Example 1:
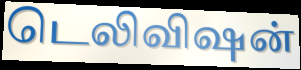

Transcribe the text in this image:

டெலிவிஷன்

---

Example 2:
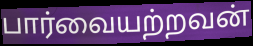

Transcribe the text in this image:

பார்வையற்றவன்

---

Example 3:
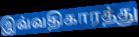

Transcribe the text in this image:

இவ்வதிகாரத்து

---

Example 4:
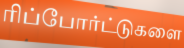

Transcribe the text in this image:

ரிப்போர்ட்டுகளை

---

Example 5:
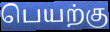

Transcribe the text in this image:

பெயற்கு